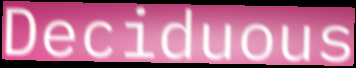
Deciduous